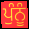
ਪੁੰਨੂੰ